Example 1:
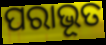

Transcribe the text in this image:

ପରାଭୂତ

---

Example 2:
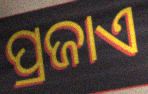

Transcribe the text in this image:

ପ୍ରଜାଏ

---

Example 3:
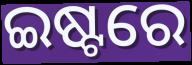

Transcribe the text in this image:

ଇଷ୍ଟରେ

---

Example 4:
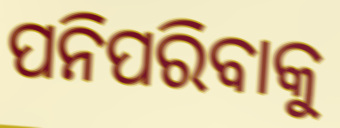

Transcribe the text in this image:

ପନିପରିବାକୁ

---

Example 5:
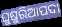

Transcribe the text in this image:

ଘୁଷୁରିଆପଦା